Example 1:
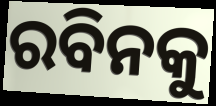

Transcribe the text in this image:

ରବିନକୁ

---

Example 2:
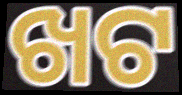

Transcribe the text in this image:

ଖଟ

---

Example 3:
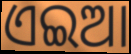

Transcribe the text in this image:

ଏଇଆ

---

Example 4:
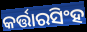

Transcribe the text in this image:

କର୍ତ୍ତାରସିଂହ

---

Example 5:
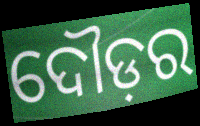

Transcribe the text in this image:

ଦୌଡ଼ର